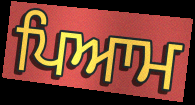
ਪਿਆਮ